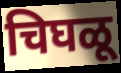
चिघळू